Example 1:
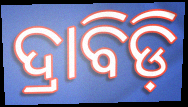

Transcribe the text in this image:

ଦ୍ରାବିଡ଼ି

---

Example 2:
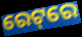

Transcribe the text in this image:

ରେଟ୍‌ରେ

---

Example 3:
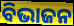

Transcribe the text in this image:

ବିଭାଜନ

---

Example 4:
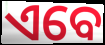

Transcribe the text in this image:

ଏବେ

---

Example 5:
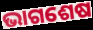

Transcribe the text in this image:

ଭାଗଶେଷ